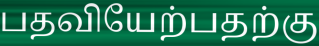
பதவியேற்பதற்கு